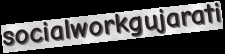
socialworkgujarati